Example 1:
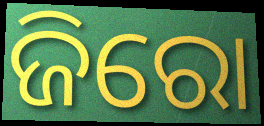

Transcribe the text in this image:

ଜିରୋ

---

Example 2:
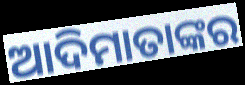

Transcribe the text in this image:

ଆଦିମାତାଙ୍କର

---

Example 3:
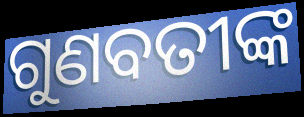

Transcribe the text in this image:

ଗୁଣବତୀଙ୍କ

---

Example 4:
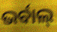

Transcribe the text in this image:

ଭର୍ବାଲ୍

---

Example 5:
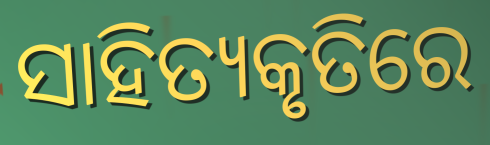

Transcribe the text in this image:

ସାହିତ୍ୟକୃତିରେ